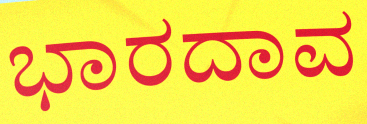
ಭಾರದಾವ